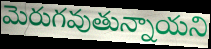
మెరుగవుతున్నాయని